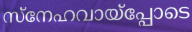
സ്നേഹവായ്പ്പോടെ